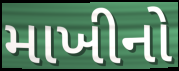
માખીનો